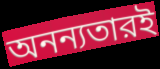
অনন্যতারই